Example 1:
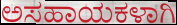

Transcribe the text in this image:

ಅಸಹಾಯಕಳಾಗಿ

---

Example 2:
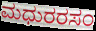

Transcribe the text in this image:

ಮಧುರರಸಂ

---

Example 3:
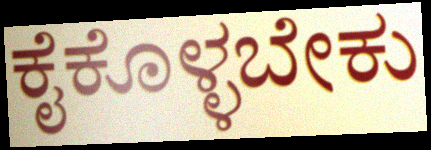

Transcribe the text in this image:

ಕೈಕೊಳ್ಳಬೇಕು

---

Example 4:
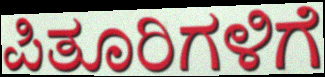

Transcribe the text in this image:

ಪಿತೂರಿಗಳಿಗೆ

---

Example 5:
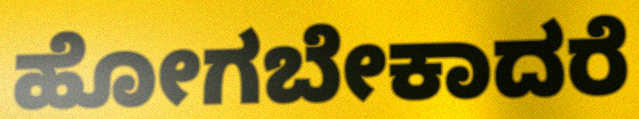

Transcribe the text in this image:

ಹೋಗಬೇಕಾದರೆ